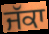
ਜੱਕਾ